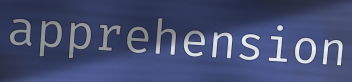
apprehension